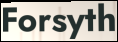
Forsyth